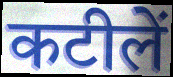
कटीलें